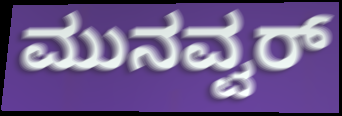
ಮುನವ್ವರ್